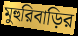
মুহুরিবাড়ির